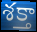
శక్తా